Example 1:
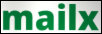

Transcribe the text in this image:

mailx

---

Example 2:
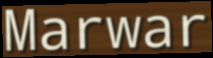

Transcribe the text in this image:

Marwar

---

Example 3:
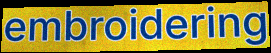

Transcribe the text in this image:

embroidering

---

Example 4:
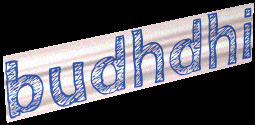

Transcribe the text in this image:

budhdhi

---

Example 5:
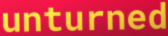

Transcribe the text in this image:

unturned